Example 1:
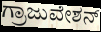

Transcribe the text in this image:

ಗ್ರಾಜುವೇಶನ್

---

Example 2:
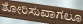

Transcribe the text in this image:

ತೋರಿಸುವಾಗಲೂ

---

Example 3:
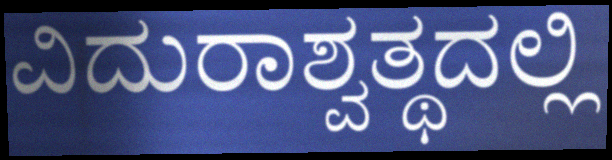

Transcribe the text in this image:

ವಿದುರಾಶ್ವತ್ಥದಲ್ಲಿ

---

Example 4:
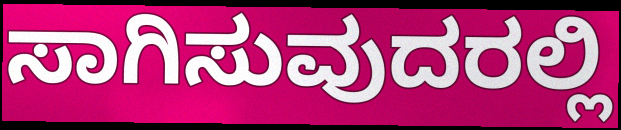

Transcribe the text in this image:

ಸಾಗಿಸುವುದರಲ್ಲಿ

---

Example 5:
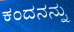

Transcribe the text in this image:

ಕಂದನನ್ನು